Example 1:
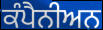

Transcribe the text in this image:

ਕੰਪੈਨੀਅਨ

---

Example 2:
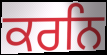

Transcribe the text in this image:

ਕਰਨਿ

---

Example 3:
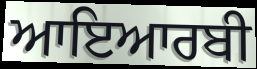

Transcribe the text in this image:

ਆਇਆਰਬੀ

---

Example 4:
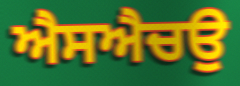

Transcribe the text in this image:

ਐਸਐਚਉ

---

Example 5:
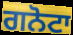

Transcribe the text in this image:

ਗਨੋਟਾ